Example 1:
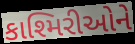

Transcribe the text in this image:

કાશ્મિરીઓને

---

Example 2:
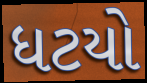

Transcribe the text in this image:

ધટયો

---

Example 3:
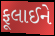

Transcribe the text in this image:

ફૂલાઈને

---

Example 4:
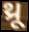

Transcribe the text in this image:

થ્રૂ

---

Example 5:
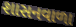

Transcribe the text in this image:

શાસનવાળા